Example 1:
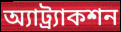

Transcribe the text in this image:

অ্যাট্র্যাকশন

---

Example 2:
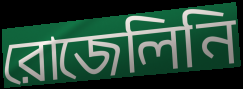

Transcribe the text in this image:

রোজেলিনি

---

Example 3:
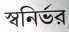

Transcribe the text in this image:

স্বনির্ভর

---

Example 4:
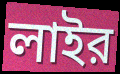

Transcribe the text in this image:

লাইর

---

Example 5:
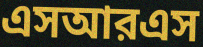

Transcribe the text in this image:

এসআরএস